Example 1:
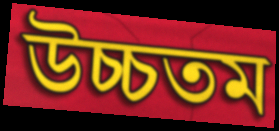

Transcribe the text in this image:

উচ্চতম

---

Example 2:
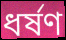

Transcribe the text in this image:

ধৰ্ষণ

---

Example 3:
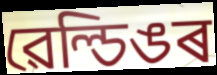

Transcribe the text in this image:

ৱেল্ডিঙৰ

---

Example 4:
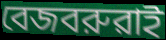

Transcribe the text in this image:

বেজবৰুৱাই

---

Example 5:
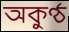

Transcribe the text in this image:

অকুণ্ঠ